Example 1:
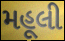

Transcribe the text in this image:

મહૂલી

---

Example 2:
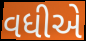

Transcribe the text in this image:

વધીએ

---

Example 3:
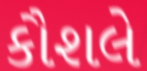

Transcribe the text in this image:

કૌશલે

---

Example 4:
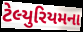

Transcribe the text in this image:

ટેલ્યુરિયમના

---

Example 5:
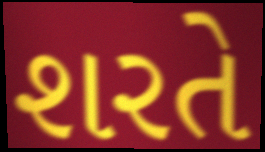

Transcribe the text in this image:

શરતે